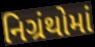
નિગ્રંથોમાં